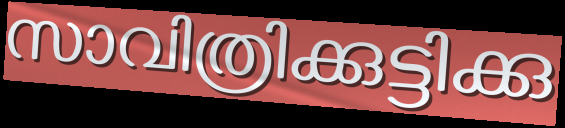
സാവിത്രിക്കുട്ടിക്കു